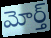
మోర్త్